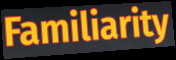
Familiarity